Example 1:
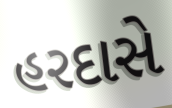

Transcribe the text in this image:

હરદાસે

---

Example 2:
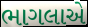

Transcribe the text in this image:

ભાગલાએ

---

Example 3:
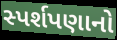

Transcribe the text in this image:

સ્પર્શપણાનો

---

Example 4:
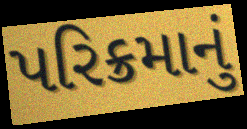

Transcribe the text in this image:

પરિક્રમાનું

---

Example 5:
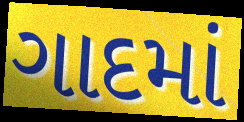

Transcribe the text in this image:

ગાદમાં